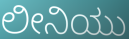
ಲೀನಿಯು